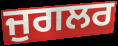
ਜੁਗਲਰ